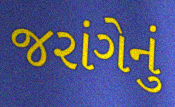
જરાંગેનું